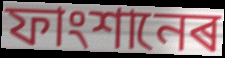
ফাংশানেৰ